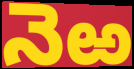
నెఱ